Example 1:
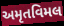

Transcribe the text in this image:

અમૃતવિમલ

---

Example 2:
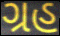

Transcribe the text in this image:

ગ્રહ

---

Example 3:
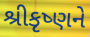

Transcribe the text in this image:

શ્રીકૃષ્ણને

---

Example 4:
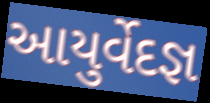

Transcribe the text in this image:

આયુર્વેદજ્ઞ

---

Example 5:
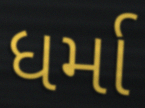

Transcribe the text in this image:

ધર્મા